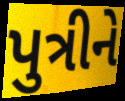
પુત્રીને